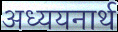
अध्ययनार्थ